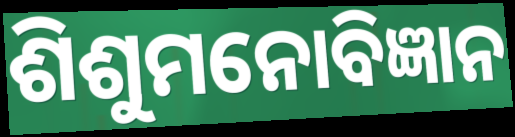
ଶିଶୁମନୋବିଜ୍ଞାନ